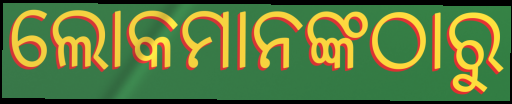
ଲୋକମାନଙ୍କଠାରୁ